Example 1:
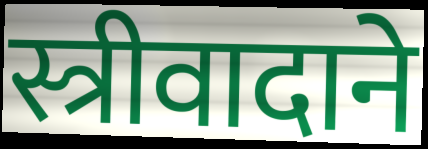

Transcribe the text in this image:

स्त्रीवादाने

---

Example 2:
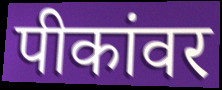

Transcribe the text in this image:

पीकांवर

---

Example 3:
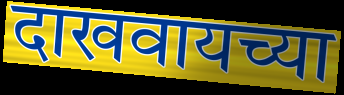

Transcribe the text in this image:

दाखवायच्या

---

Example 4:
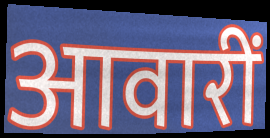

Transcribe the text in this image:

आवारीं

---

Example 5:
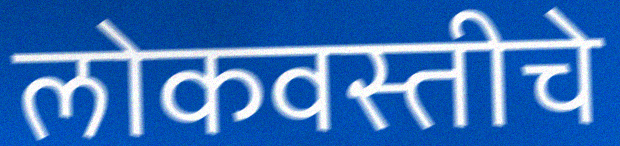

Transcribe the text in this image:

लोकवस्तीचे